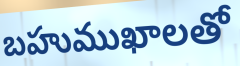
బహుముఖాలతో